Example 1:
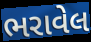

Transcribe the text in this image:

ભરાવેલ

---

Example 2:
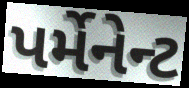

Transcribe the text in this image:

પર્મેનેન્ટ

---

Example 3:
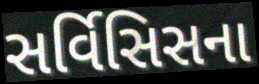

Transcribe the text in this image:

સર્વિસિસના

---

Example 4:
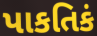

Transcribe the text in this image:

પાકતિકં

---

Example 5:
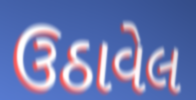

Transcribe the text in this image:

ઉઠાવેલ